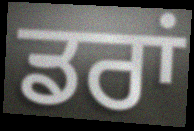
ਡਰਾਂ